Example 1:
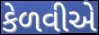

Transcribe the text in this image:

કેળવીએ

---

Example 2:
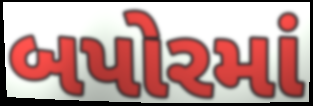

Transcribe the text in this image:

બપોરમાં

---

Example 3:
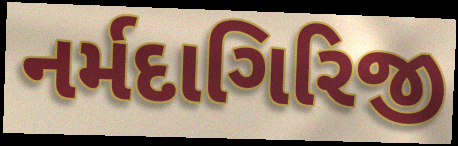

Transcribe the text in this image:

નર્મદાગિરિજી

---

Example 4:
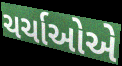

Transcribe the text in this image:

ચર્ચાઓએ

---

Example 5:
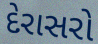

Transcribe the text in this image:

દેરાસરો